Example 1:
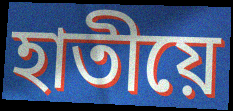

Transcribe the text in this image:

হাতীয়ে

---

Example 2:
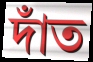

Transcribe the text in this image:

দাঁত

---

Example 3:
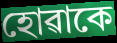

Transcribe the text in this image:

হোৱাকে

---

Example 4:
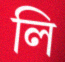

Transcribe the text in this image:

লি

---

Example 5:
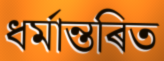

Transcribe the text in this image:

ধৰ্মান্তৰিত